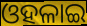
ଓହଳାଇ